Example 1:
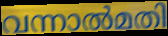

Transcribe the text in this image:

വന്നാൽമതി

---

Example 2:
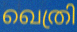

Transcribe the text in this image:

ഖെത്രി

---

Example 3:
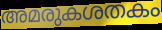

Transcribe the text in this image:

അമരുകശതകം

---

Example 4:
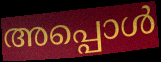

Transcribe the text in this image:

അപ്പൊൾ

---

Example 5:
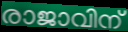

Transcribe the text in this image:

രാജാവിന്